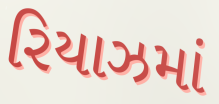
રિયાઝમાં